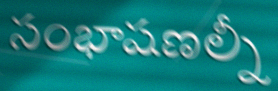
సంభాషణల్నీ